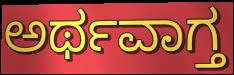
ಅರ್ಥವಾಗ್ತ